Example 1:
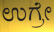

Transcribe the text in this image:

ಉಗ್ರೇ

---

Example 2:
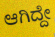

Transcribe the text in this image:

ಆಗಿದ್ದೇ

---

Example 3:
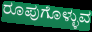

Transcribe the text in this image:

ರೂಪುಗೊಳ್ಳುವ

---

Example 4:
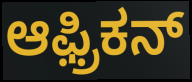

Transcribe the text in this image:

ಆಫ಼್ರಿಕನ್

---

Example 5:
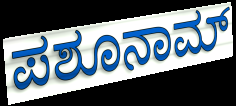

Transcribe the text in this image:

ಪಶೂನಾಮ್